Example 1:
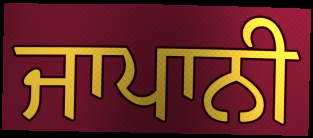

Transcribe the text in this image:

ਜਾਪਾਨੀ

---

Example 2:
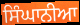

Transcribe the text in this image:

ਸਿੰਘਾਨੀਆ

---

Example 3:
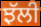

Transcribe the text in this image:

ਝੱਲੀ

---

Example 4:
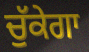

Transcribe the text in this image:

ਚੁੱਕੇਗਾ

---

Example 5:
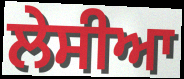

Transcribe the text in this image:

ਲੇਸੀਆ